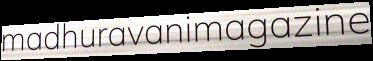
madhuravanimagazine